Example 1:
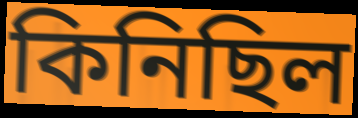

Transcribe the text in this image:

কিনিছিল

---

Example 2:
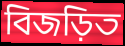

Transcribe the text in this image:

বিজড়িত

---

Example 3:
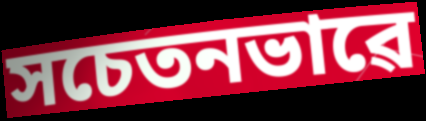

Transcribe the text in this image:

সচেতনভাৱে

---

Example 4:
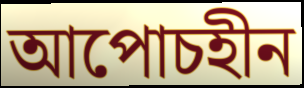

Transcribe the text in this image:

আপোচহীন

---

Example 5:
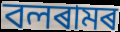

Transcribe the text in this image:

বলৰামৰ